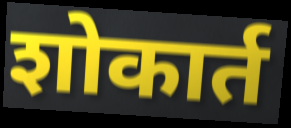
शोकार्त